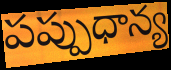
పప్పుధాన్య